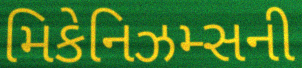
મિકેનિઝમ્સની